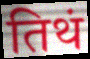
तिथं